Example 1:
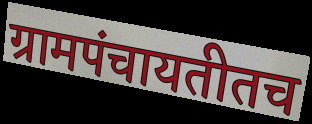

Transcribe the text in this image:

ग्रामपंचायतीतच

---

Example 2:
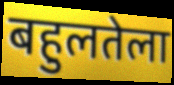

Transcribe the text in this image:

बहुलतेला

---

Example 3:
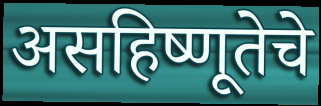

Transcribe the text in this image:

असहिष्णूतेचे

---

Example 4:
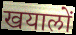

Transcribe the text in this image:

खयालों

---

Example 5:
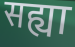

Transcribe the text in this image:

सह्या